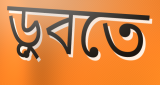
ড়ুবতে